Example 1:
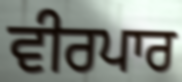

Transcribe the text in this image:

ਵੀਰਪਾਰ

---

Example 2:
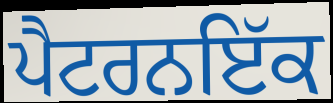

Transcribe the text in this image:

ਪੈਟਰਨਇੱਕ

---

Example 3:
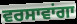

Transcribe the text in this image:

ਵਰਸਾਵਾਂਗਾ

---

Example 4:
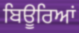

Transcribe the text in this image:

ਬਿਊਰਿਆਂ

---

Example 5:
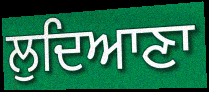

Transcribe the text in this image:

ਲੁਦਿਆਣਾ